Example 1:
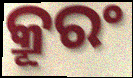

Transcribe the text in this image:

କ୍ରୂରଂ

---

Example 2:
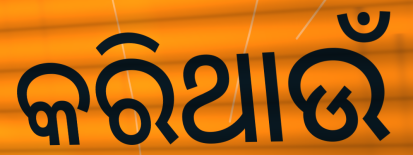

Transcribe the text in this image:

କରିଥାଉଁ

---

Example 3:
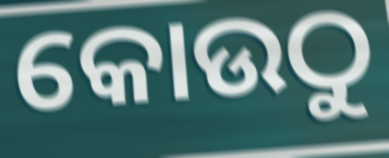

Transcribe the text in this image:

କୋଉଠୁ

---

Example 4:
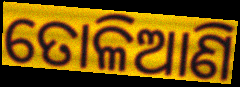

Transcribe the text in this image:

ତୋଳିଆଣି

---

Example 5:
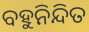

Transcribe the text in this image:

ବହୁନିନ୍ଦିତ